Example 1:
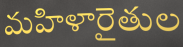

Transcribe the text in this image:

మహిళారైతుల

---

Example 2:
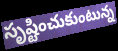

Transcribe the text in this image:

సృష్టించుకుంటున్న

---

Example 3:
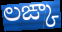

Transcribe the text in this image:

లఙ్కా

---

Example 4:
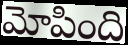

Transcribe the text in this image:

మోపింది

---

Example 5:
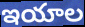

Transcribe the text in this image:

ఇయాల